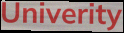
Univerity